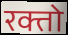
रक्तो